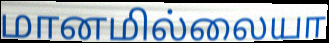
மானமில்லையா